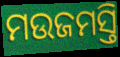
ମଉଜମସ୍ତି